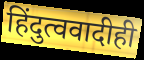
हिंदुत्ववादीही